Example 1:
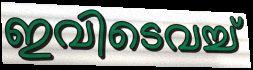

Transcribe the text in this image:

ഇവിടെവച്ച്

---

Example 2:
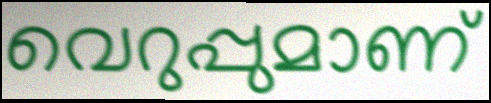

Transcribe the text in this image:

വെറുപ്പുമാണ്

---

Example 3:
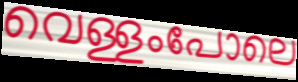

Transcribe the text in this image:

വെള്ളംപോലെ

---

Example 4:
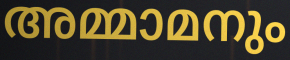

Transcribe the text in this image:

അമ്മാമനും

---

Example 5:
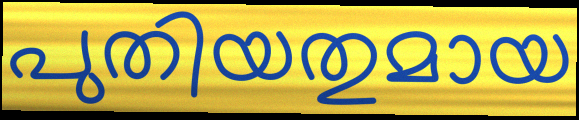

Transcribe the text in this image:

പുതിയതുമായ